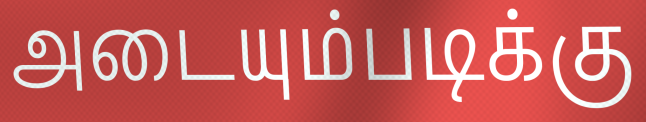
அடையும்படிக்கு